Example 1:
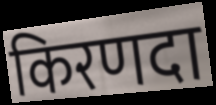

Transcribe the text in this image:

किरणदा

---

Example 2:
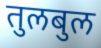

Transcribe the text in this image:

तुलबुल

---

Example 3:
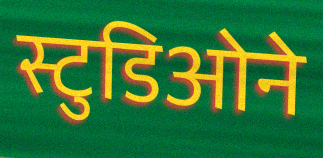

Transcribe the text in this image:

स्टुडिओने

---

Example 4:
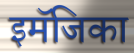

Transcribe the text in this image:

इमॅजिका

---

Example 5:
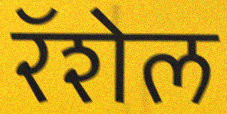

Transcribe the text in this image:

रॅशेल